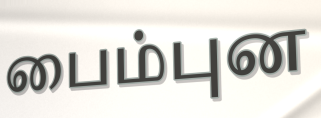
பைம்புன